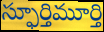
స్ఫూర్తిమూర్తి